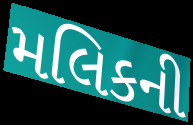
મલિકની